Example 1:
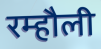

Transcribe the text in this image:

रम्हौली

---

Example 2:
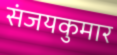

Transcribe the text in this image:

संजयकुमार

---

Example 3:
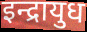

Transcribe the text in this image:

इन्द्रायुध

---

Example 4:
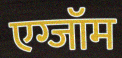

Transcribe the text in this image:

एग्जॉम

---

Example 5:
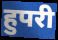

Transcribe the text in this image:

हुपरी